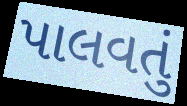
પાલવતું